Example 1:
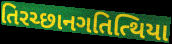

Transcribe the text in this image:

તિરચ્છાનગતિત્થિયા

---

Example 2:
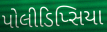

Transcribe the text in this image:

પોલીડિપ્સિયા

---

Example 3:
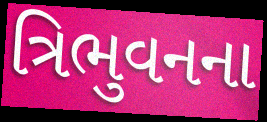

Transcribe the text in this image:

ત્રિભુવનના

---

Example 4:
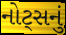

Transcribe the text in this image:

નોટ્સનું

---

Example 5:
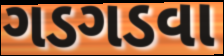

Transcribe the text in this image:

ગડગડવા